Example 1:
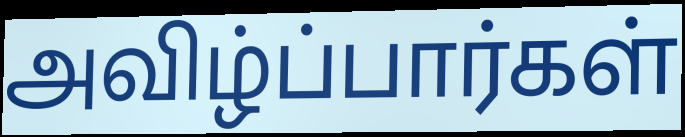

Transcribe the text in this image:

அவிழ்ப்பார்கள்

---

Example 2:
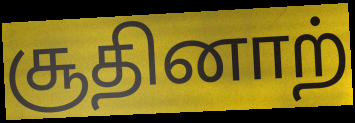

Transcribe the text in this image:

சூதினாற்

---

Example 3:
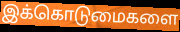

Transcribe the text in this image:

இக்கொடுமைகளை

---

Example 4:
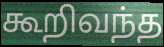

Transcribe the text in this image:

கூறிவந்த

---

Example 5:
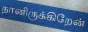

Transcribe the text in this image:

நானிருக்கிறேன்